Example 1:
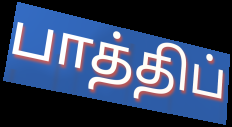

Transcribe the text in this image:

பாத்திப்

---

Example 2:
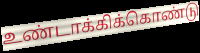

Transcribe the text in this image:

உண்டாக்கிக்கொண்டு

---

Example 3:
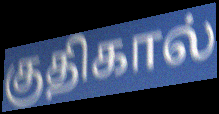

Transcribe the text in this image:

குதிகால்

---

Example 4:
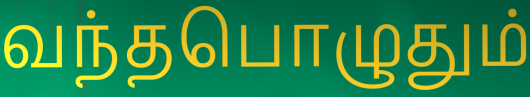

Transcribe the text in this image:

வந்தபொழுதும்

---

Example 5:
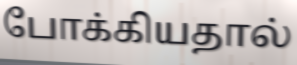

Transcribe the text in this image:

போக்கியதால்